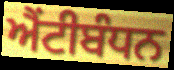
ਐਂਟੀਬੰਧਨ